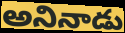
అనినాడు